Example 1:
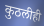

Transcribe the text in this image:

कुठलीही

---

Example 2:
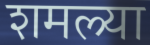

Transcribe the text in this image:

शमल्या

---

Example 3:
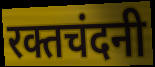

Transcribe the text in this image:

रक्तचंदनी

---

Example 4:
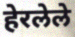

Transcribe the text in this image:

हेरलेले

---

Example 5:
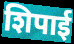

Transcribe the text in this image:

शिपाई